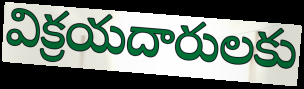
విక్రయదారులకు